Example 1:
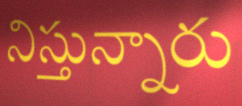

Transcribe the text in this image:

నిస్తున్నారు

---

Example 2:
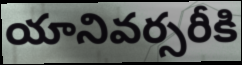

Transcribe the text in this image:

యానివర్సరీకి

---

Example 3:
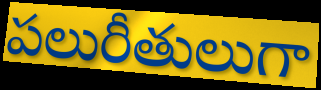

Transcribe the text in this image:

పలురీతులుగా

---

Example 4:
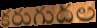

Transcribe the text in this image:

కరుగుదల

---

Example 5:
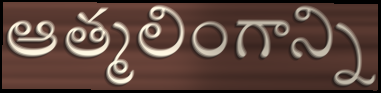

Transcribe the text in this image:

ఆత్మలింగాన్ని